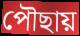
পৌছায়